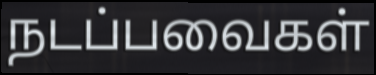
நடப்பவைகள்